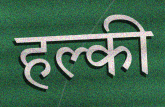
हल्‍की